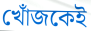
খোঁজকেই